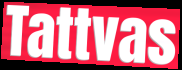
Tattvas